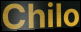
Chilo